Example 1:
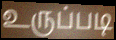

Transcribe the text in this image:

உருப்படி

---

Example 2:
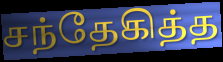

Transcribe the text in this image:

சந்தேகித்த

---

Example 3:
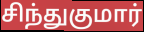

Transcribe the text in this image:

சிந்துகுமார்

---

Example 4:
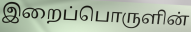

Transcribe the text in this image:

இறைப்பொருளின்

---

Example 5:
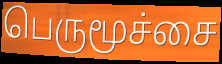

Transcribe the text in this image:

பெருமூச்சை